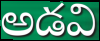
అడవి